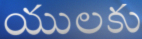
యులకు